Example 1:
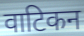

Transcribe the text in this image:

वाटिकन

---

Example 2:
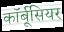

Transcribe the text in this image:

कॉर्बूसियर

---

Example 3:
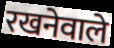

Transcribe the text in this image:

रखनेवाले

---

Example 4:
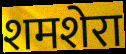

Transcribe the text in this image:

शमशेरा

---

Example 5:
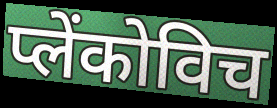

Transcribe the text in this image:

प्लेंकोविच